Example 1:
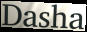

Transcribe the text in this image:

Dasha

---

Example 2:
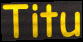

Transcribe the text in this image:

Titu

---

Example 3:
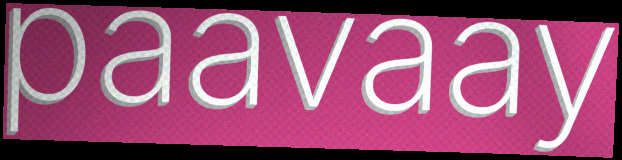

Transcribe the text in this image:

paavaay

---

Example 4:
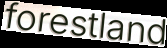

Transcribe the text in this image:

forestland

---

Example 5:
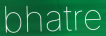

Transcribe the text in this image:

bhatre